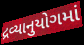
દ્રવ્યાનુયોગમાં